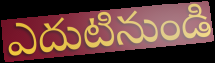
ఎదుటినుండి